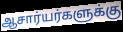
ஆசார்யர்களுக்கு